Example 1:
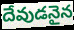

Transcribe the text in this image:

దేవుడనైన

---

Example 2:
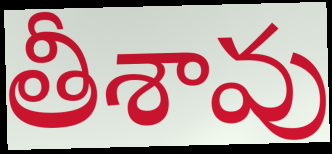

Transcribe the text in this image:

తీశావు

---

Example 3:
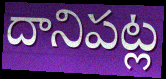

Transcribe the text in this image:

దానిపట్ల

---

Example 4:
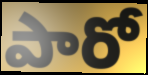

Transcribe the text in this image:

పారో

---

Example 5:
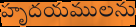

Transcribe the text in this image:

హృదయములను